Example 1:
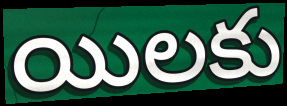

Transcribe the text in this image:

యిలకు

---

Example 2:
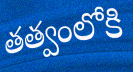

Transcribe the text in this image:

తత్వంలోకి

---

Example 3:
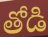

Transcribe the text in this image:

తోడి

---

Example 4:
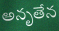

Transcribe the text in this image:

అనృతేన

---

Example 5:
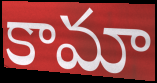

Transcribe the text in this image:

కామా